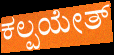
ಕಲ್ಪಯೇತ್